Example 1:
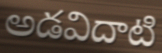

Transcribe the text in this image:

అడవిదాటి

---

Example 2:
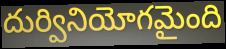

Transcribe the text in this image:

దుర్వినియోగమైంది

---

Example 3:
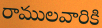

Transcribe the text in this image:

రాములవారికి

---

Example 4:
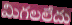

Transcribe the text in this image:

మిగలలేదు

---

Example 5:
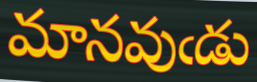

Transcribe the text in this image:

మానవుఁడు